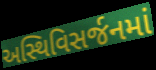
અસ્થિવિસર્જનમાં